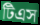
টিএস